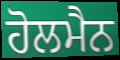
ਹੋਲਮੈਨ